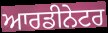
ਆਰਡੀਨੇਟਰ